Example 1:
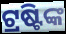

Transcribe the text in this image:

ଟ୍ରଷ୍ଟିଙ୍କ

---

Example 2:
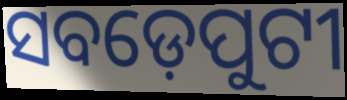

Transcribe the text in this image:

ସବଡ଼େପୁଟୀ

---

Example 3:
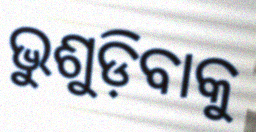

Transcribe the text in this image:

ଭୁଶୁଡ଼ିବାକୁ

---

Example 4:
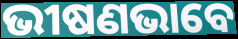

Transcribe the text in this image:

ଭୀଷଣଭାବେ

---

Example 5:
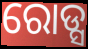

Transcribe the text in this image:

ରୋଡ୍ସ